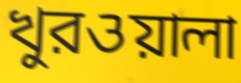
খুরওয়ালা